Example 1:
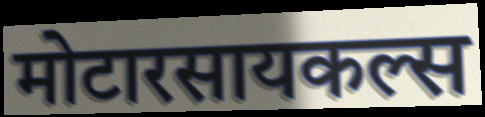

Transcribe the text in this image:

मोटारसायकल्स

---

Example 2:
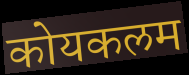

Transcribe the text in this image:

कोयकलम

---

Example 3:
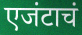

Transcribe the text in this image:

एजंटाचं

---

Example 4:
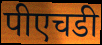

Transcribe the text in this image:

पीएचडी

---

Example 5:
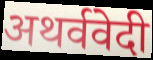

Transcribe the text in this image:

अथर्ववेदी